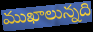
ముఖాలున్నది